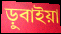
ড়ুবাইয়া